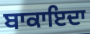
ਬਾਕਾਇਦਾ